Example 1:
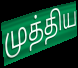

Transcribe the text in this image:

முத்திய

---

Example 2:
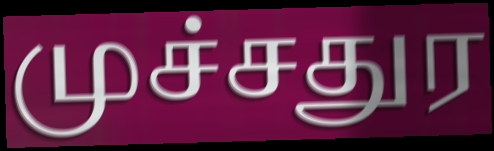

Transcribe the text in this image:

முச்சதுர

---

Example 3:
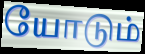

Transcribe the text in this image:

யோடும்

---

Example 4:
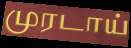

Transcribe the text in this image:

முரடாய்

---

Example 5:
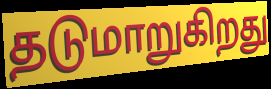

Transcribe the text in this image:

தடுமாறுகிறது